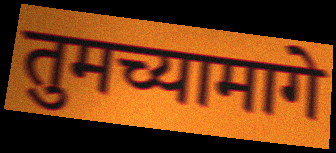
तुमच्यामागे